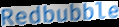
Redbubble